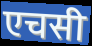
एचसी